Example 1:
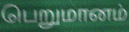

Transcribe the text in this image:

பெறுமானம்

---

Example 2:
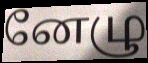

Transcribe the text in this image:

னேழு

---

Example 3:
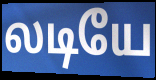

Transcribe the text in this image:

லடியே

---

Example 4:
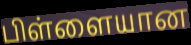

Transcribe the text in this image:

பிள்ளையான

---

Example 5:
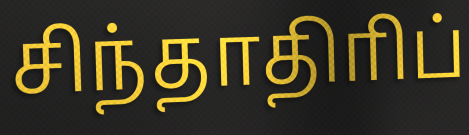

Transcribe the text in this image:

சிந்தாதிரிப்